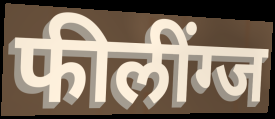
फीलींग्ज